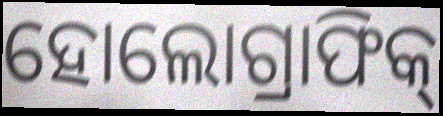
ହୋଲୋଗ୍ରାଫିକ୍